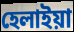
হেলাইয়া